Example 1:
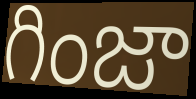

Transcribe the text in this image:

గింజా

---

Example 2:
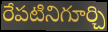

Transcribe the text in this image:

రేపటినిగూర్చి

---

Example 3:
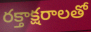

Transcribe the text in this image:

రక్తాక్షరాలతో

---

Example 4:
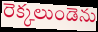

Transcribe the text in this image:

రెక్కలుండెను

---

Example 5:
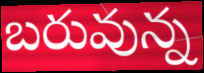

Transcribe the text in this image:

బరువున్న